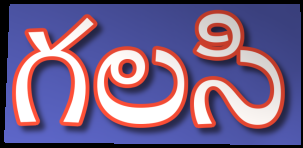
గలసి